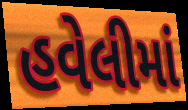
હવેલીમાં